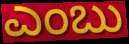
ಎಂಬು